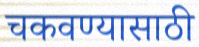
चकवण्यासाठी